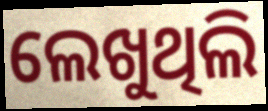
ଲେଖୁଥିଲି